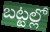
బట్టల్లో